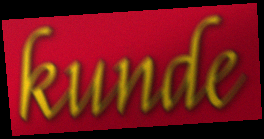
kunde